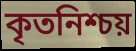
কৃতনিশ্চয়